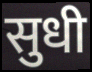
सुधी